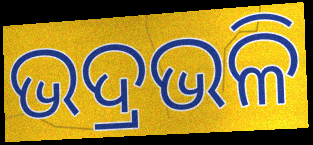
ଭଦ୍ରଭଳି